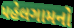
પહેલગામનો